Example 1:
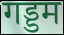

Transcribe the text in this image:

गड्डम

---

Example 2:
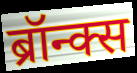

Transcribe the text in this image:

ब्रॉन्क्स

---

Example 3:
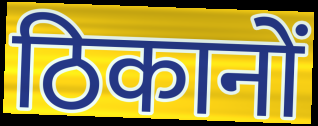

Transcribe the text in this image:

ठिकानों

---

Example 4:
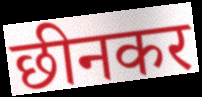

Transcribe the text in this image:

छीनकर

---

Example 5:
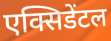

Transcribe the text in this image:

एक्सिडेंटल